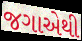
જગાએથી